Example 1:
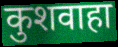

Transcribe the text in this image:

कुशवाहा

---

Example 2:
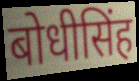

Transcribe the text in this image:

बोधीसिंह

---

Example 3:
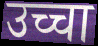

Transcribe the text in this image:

उच्चा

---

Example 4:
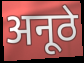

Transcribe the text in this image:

अनूठे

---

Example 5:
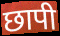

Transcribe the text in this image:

छापी